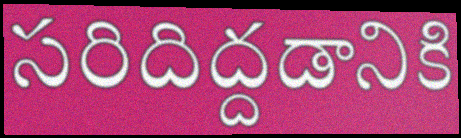
సరిదిద్దడానికి